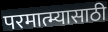
परमात्म्यासाठी